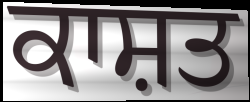
ਕਾਸ਼ਤ